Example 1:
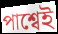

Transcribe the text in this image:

পাশ্বেই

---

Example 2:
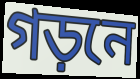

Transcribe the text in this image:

গড়নে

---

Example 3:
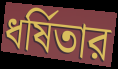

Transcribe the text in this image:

ধর্ষিতার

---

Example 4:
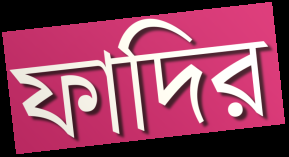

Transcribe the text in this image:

ফাদির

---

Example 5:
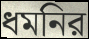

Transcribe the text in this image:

ধমনির